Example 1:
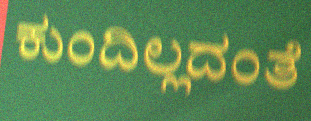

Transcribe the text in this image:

ಕುಂದಿಲ್ಲದಂತೆ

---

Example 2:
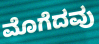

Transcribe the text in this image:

ಮೊಗೆದವು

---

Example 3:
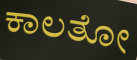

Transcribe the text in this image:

ಕಾಲತೋ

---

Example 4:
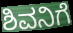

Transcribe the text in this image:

ಶಿವನಿಗೆ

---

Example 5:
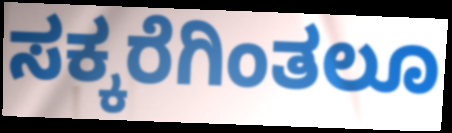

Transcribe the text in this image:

ಸಕ್ಕರೆಗಿಂತಲೂ